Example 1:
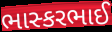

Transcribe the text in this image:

ભાસ્કરભાઈ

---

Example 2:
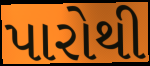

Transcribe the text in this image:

પારોથી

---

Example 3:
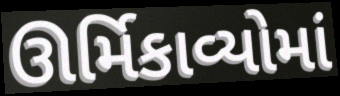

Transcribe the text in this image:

ઊર્મિકાવ્યોમાં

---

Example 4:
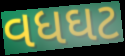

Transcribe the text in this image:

વધઘટ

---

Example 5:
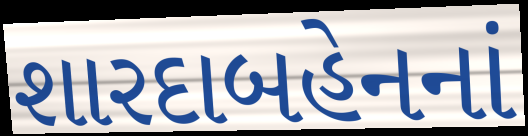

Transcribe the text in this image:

શારદાબહેનનાં